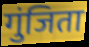
गुंजिता